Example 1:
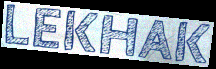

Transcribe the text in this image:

LEKHAK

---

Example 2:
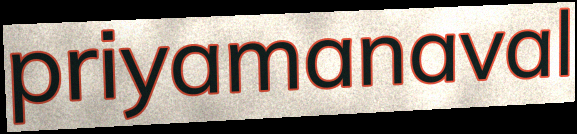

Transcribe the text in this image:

priyamanaval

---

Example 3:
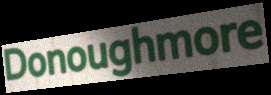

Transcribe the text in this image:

Donoughmore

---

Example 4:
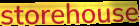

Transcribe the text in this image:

storehouse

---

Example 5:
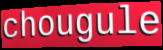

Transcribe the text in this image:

chougule